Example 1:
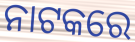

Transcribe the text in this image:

ନାଟକରେ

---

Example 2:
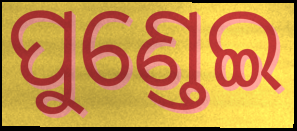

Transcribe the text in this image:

ପୁଣ୍ଡେଇ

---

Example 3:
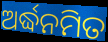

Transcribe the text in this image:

ଅର୍ଦ୍ଧନମିତ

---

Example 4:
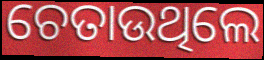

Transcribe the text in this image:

ଚେତାଉଥିଲେ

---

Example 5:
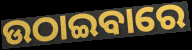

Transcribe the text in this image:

ଉଠାଇବାରେ